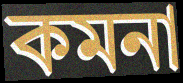
কমনা